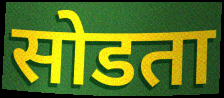
सोडता